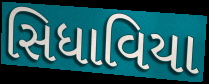
સિધાવિયા